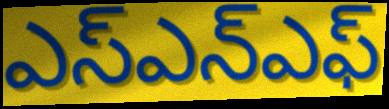
ఎస్ఎన్ఎఫ్